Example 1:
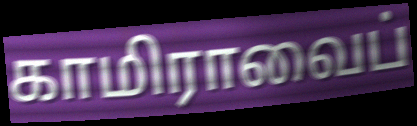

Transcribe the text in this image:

காமிராவைப்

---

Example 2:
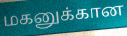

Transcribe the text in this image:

மகனுக்கான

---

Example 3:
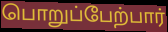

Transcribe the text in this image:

பொறுப்பேற்பார்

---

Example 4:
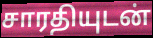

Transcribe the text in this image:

சாரதியுடன்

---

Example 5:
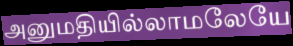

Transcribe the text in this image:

அனுமதியில்லாமலேயே